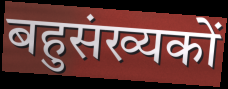
बहुसंख्यकों